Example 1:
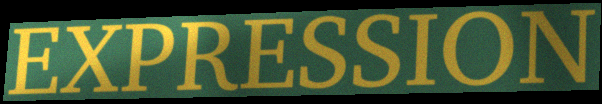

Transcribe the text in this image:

EXPRESSION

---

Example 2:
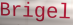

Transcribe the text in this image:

Brigel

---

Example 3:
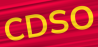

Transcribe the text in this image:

CDSO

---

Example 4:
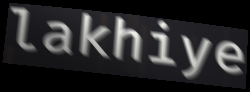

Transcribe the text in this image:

lakhiye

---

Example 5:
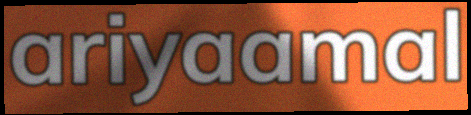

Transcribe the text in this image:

ariyaamal